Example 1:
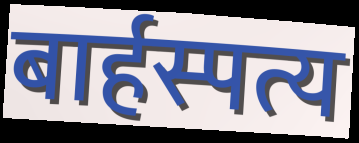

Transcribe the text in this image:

बार्हस्पत्य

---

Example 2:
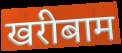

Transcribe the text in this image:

खरीबाम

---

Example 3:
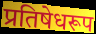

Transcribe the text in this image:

प्रतिषेधरूप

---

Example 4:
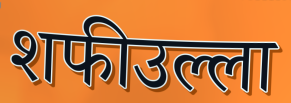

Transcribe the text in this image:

शफीउल्ला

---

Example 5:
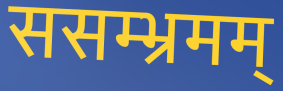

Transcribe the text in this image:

ससम्भ्रमम्